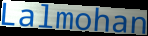
Lalmohan